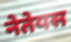
नेतेयस